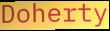
Doherty